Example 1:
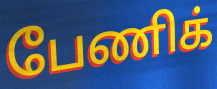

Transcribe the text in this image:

பேணிக்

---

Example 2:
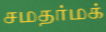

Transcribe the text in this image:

சமதர்மக்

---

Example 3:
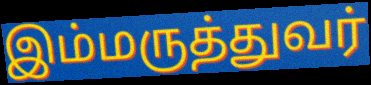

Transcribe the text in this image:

இம்மருத்துவர்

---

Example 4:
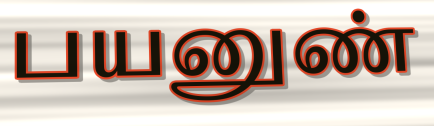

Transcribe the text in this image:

பயனுண்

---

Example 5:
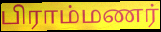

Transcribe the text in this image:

பிராம்மணர்